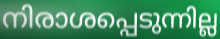
നിരാശപ്പെടുന്നില്ല